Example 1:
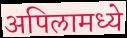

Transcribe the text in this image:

अपिलामध्ये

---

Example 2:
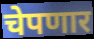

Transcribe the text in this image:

चेपणार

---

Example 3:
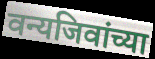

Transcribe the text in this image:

वन्यजिवांच्या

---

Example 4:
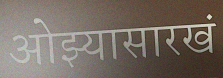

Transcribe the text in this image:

ओझ्यासारखं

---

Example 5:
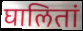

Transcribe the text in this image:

घालितां